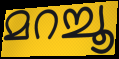
മറച്ചൂ